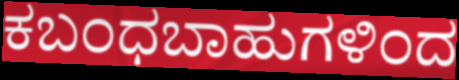
ಕಬಂಧಬಾಹುಗಳಿಂದ